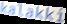
kalakki